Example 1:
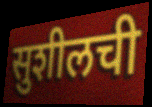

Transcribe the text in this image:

सुशीलची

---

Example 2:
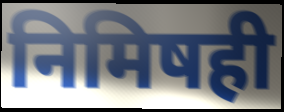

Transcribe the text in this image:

निमिषही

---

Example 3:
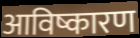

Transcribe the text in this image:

आविष्कारण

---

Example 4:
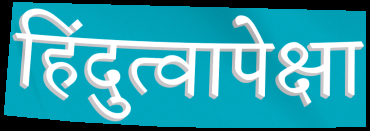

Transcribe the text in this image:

हिंदुत्वापेक्षा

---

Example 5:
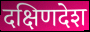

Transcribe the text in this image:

दक्षिणदेश